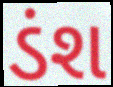
ડંશ